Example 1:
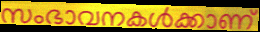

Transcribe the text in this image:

സംഭാവനകൾക്കാണ്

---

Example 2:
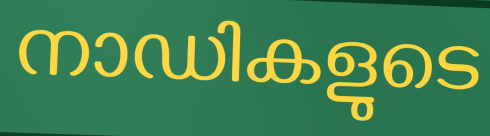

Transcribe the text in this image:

നാഡികളുടെ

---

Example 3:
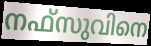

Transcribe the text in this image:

നഫ്സുവിനെ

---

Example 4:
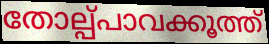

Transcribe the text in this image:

തോല്പ്പാവക്കൂത്ത്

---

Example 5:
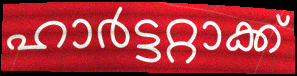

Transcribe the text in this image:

ഹാർട്ടറ്റാക്ക്